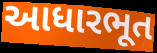
આધારભૂત